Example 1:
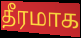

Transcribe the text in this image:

தீரமாக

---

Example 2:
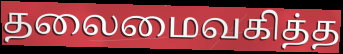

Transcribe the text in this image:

தலைமைவகித்த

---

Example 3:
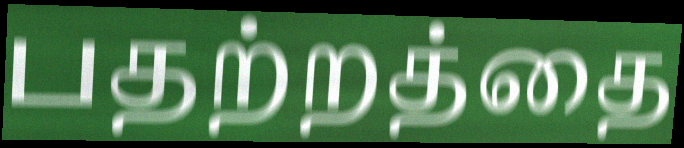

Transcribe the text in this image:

பதற்றத்தை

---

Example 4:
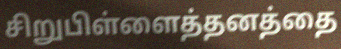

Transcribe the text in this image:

சிறுபிள்ளைத்தனத்தை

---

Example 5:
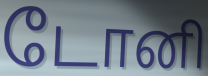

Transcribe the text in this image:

டோனி